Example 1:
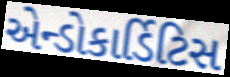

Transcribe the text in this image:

એન્ડોકાર્ડિટિસ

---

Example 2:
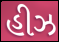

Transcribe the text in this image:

હીઝ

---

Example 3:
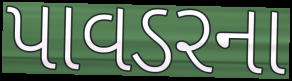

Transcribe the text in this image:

પાવડરના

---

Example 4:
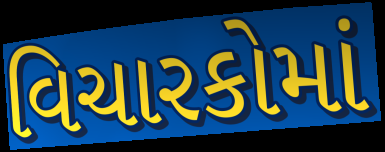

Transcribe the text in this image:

વિચારકોમાં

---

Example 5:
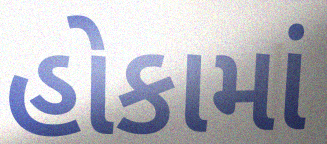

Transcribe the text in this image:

હોકામાં